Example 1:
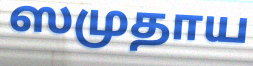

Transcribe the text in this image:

ஸமுதாய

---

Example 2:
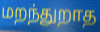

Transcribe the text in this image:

மறந்துறாத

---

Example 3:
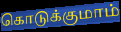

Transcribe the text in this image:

கொடுக்குமாம்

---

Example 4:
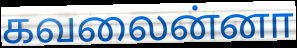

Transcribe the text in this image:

கவலைன்னா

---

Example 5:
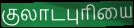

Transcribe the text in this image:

குலாடபுரியை